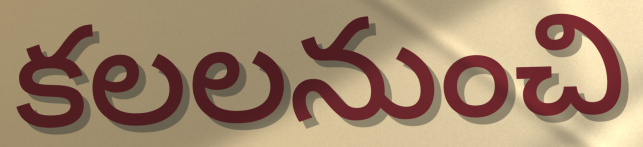
కలలనుంచి